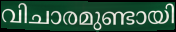
വിചാരമുണ്ടായി